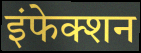
इंफेक्शन